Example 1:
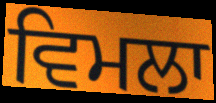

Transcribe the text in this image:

ਵਿਮਲਾ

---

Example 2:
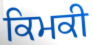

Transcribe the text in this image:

ਕਿਮਕੀ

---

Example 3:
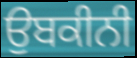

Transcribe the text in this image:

ਉਬਕੀਨੀ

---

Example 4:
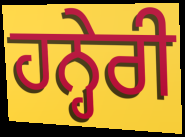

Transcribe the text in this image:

ਹਨ੍ਹੇਰੀ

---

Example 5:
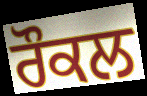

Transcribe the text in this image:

ਰੌਕਲ